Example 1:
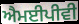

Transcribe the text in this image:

ਐਮਈਪੀਵੀ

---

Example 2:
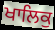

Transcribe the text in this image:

ਖਾਲਿਕੁ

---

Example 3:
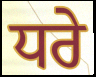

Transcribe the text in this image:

ਧਰੇ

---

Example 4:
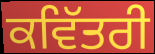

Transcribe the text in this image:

ਕਵਿੱਤਰੀ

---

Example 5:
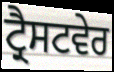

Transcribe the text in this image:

ਟ੍ਰੈਸਟਵੇਰ